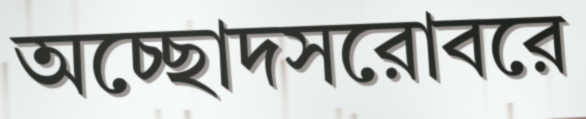
অচ্ছোদসরোবরে